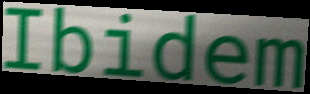
Ibidem